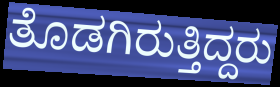
ತೊಡಗಿರುತ್ತಿದ್ದರು